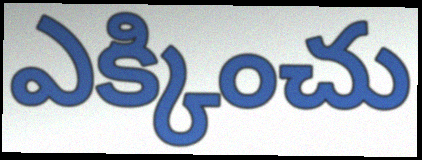
ఎక్కించు